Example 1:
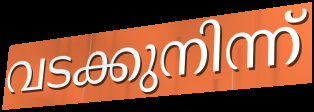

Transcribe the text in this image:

വടക്കുനിന്ന്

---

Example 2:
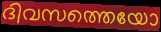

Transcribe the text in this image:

ദിവസത്തെയോ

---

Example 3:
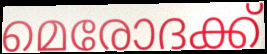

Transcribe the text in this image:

മെരോദക്ക്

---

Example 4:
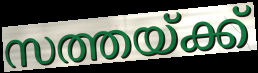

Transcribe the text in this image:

സത്തയ്ക്ക്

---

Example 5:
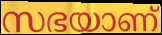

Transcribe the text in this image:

സഭയാണ്